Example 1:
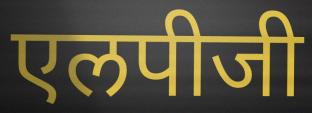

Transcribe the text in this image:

एलपीजी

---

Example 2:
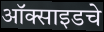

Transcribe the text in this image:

ऑक्साइडचे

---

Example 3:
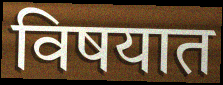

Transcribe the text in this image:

विषयात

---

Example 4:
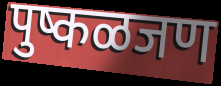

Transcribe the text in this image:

पुष्कळजण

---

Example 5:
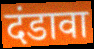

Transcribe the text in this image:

दंडावा